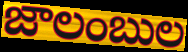
జాలంబుల